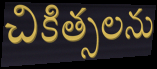
చికిత్సలను